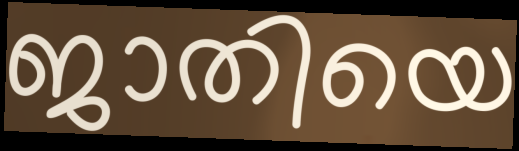
ജാതിയെ